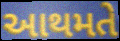
આથમતે